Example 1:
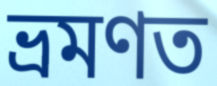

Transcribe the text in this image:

ভ্ৰমণত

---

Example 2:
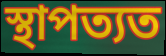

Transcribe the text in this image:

স্থাপত্যত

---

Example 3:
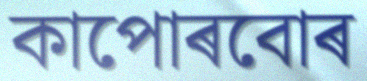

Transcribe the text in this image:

কাপোৰবোৰ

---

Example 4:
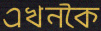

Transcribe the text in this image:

এখনকৈ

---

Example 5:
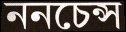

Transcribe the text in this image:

ননচেন্স